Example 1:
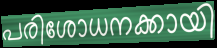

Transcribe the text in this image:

പരിശോധനക്കായി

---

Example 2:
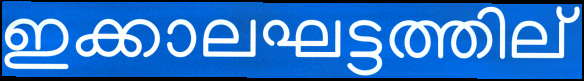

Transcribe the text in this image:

ഇക്കാലഘട്ടത്തില്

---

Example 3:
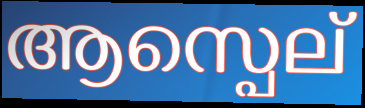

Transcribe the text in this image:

ആസ്പെല്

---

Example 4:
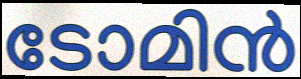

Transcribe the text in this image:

ടോമിൻ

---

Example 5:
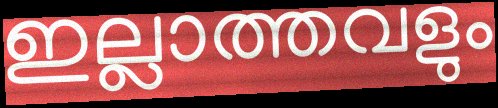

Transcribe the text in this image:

ഇല്ലാത്തവളും